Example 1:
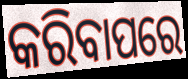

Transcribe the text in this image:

କରିବାପରେ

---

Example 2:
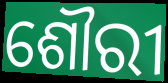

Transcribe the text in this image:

ଶୌରୀ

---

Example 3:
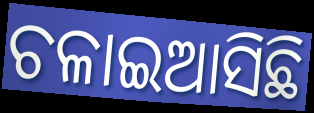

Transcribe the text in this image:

ଚଳାଇଆସିଛି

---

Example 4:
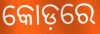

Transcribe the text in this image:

କୋଡ଼ରେ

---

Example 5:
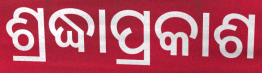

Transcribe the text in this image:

ଶ୍ରଦ୍ଧାପ୍ରକାଶ